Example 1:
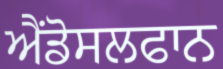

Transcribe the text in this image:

ਐਂਡੋਸਲਫਾਨ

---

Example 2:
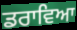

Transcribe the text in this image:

ਡਰਾਵਿਆ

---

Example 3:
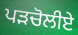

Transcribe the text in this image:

ਪੜਚੋਲੀਏ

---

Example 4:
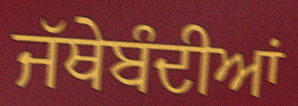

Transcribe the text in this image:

ਜੱਥੇਬੰਦੀਆਂ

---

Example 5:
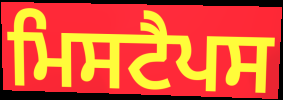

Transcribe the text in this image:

ਮਿਸਟੈਪਸ